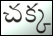
చక్క